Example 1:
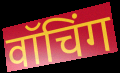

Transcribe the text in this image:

वॉचिंग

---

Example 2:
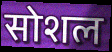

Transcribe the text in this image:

सोशल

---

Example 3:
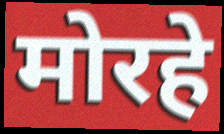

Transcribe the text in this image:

मोरहे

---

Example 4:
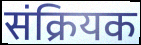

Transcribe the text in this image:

संक्रियक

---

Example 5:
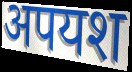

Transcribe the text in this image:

अपयश